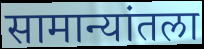
सामान्यांतला